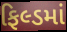
ફિલ્ડમાં